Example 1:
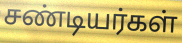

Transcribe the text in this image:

சண்டியர்கள்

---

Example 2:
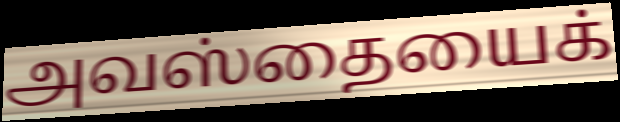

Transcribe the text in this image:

அவஸ்தையைக்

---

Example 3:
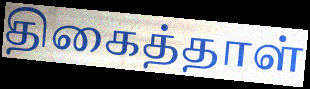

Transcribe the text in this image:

திகைத்தாள்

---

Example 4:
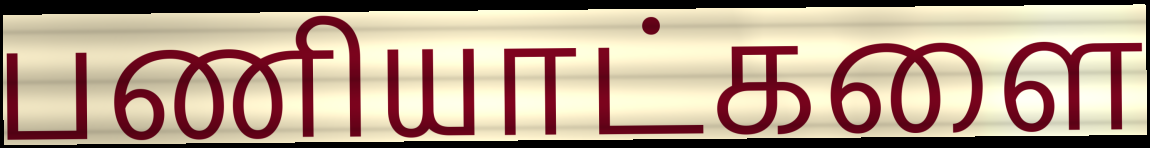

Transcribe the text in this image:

பணியாட்களை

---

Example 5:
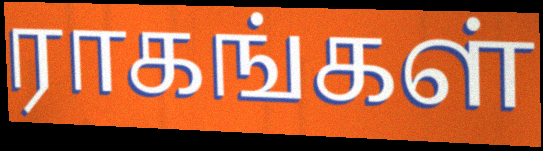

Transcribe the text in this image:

ராகங்கள்